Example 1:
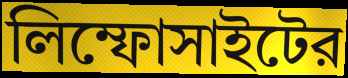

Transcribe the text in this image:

লিম্ফোসাইটের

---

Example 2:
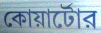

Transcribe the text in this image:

কোয়ার্টোর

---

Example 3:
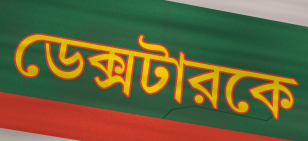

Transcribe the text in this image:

ডেক্সটারকে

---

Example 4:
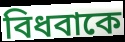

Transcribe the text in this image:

বিধবাকে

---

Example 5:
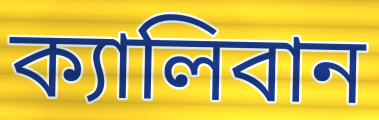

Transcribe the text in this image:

ক্যালিবান